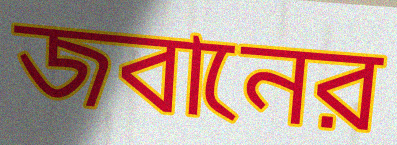
জবানের